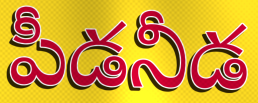
పీడనీడ